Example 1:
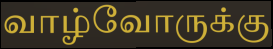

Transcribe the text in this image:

வாழ்வோருக்கு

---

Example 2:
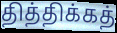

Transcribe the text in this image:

தித்திக்கத்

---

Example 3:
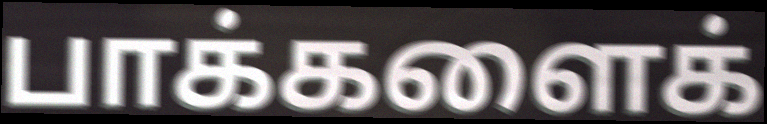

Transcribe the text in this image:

பாக்களைக்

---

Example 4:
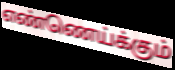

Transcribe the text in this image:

எண்ணெய்க்கும்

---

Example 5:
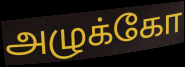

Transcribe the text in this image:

அழுக்கோ